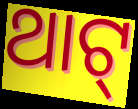
ଥାଟ୍